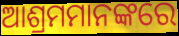
ଆଶ୍ରମମାନଙ୍କରେ